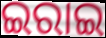
ଇରାଇ